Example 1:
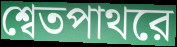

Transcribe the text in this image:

শ্বেতপাথরে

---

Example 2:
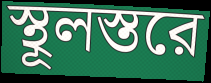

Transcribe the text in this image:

স্থূলস্তরে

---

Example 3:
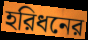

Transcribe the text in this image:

হরিধনের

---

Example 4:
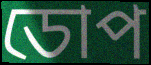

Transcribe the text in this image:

ডোপ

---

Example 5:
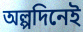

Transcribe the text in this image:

অল্পদিনেই